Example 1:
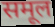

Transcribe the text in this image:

समूल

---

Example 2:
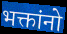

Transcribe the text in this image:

भक्तांनो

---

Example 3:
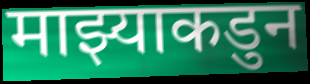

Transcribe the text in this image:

माझ्याकडुन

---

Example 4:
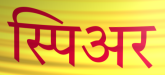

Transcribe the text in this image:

स्पिअर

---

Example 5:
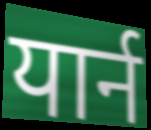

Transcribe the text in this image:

यार्न